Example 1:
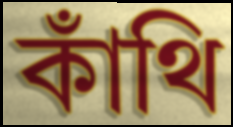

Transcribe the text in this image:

কাঁথি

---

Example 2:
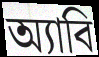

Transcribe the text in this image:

অ্যাবি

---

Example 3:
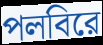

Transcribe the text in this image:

পলবিরে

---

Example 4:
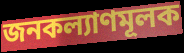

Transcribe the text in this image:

জনকল্যাণমূলক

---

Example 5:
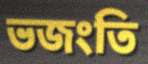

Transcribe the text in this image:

ভজংতি